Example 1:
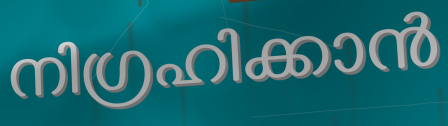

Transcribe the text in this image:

നിഗ്രഹിക്കാൻ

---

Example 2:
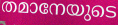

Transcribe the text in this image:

തമാനേയുടെ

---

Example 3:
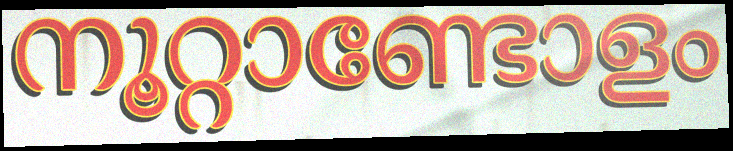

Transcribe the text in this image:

നൂറ്റാണ്ടോളം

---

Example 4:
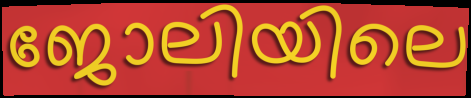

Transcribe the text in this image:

ജോലിയിലെ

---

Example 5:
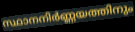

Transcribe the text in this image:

സ്ഥാനനിർണ്ണയത്തിനും